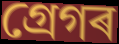
গ্ৰেগৰ